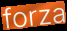
forza